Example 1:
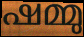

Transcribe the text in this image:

ഷമ്മു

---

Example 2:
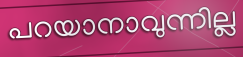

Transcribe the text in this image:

പറയാനാവുന്നില്ല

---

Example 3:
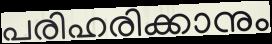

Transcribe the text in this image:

പരിഹരിക്കാനും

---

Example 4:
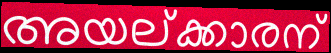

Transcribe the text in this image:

അയല്ക്കാരന്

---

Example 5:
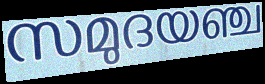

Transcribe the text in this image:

സമുദയഞ്ച